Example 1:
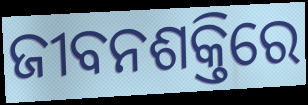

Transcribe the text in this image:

ଜୀବନଶକ୍ତିରେ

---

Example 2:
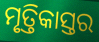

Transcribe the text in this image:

ମୃତ୍ତିକାସ୍ତର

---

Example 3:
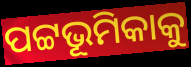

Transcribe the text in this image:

ପଟ୍ଟଭୂମିକାକୁ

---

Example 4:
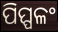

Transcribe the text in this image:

ପିପ୍ପଳଂ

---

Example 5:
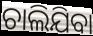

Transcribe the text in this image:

ଚାଲିଯିବା